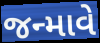
જન્માવે